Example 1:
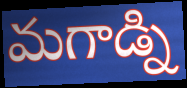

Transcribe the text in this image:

మగాడ్ని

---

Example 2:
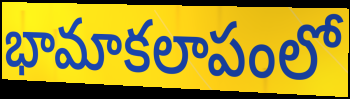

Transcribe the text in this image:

భామాకలాపంలో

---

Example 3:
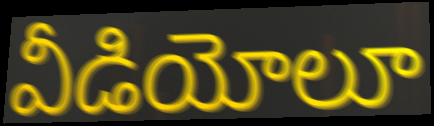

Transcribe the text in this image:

వీడియోలూ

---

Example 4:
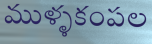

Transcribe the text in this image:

ముళ్ళకంపల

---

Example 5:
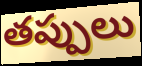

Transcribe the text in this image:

తప్పులు